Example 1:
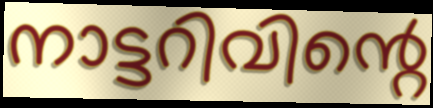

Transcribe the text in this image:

നാട്ടറിവിന്റെ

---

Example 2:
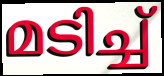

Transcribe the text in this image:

മടിച്ച്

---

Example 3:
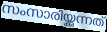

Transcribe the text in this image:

സംസാരിയ്ക്കുന്നത്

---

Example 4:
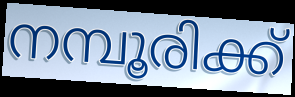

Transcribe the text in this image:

നമ്പൂരിക്ക്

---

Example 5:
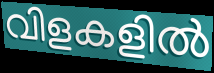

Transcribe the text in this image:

വിളകളിൽ